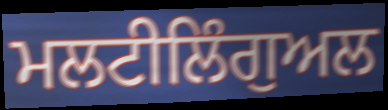
ਮਲਟੀਲਿੰਗੁਅਲ